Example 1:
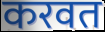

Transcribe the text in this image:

करवत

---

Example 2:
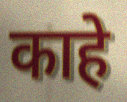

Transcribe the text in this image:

काहे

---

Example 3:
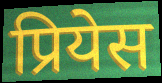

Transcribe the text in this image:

प्रियेस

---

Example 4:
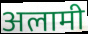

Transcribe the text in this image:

अलामी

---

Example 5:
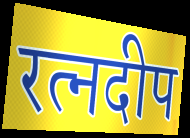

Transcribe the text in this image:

रत्नदीप